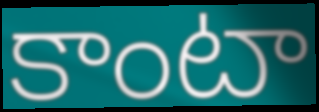
కాంటా